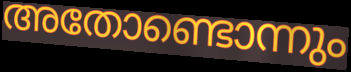
അതോണ്ടൊന്നും